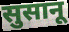
सुसानू